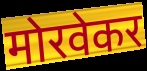
मोरवेकर